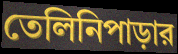
তেলিনিপাড়ার